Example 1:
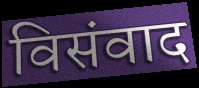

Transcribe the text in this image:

विसंवाद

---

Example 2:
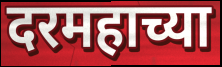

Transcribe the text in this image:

दरमहाच्या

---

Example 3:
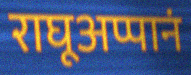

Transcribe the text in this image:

राघूअप्पानं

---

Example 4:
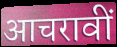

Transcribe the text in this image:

आचरावीं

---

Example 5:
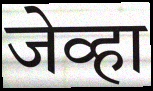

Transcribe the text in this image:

जेव्हा